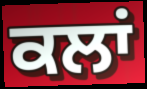
ਕਲਾਂ